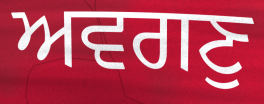
ਅਵਗਣੁ